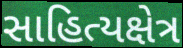
સાહિત્યક્ષેત્ર